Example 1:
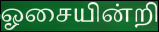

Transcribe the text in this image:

ஓசையின்றி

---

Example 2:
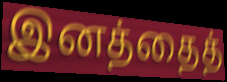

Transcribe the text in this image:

இனத்தைத்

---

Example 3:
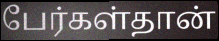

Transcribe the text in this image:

பேர்கள்தான்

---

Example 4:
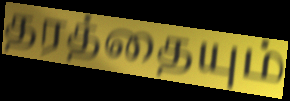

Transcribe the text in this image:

தரத்தையும்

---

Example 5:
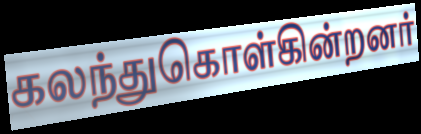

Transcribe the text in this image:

கலந்துகொள்கின்றனர்